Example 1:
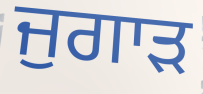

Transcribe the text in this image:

ਜੁਗਾੜ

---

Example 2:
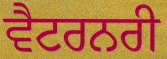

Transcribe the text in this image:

ਵੈਟਰਨਰੀ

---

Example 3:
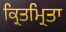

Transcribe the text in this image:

ਕ੍ਰਿਤਮ੍ਰਿਤਾ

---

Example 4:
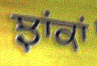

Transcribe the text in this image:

ਝਾਂਕਾਂ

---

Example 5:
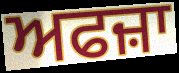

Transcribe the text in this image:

ਅਫਜ਼ਾ